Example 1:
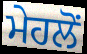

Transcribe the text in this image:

ਮੇਹਲੋਂ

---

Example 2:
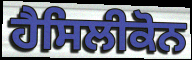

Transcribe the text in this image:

ਹੈਸਿਲੀਕੋਨ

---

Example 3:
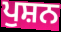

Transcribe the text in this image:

ਪੁਸ਼ਨ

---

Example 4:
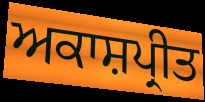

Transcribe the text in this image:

ਅਕਾਸ਼ਪ੍ਰੀਤ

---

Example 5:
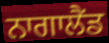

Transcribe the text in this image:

ਨਾਗਾਲੈਂਡ